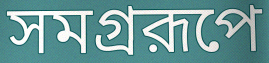
সমগ্ররূপে